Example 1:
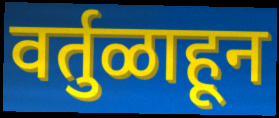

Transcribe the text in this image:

वर्तुळाहून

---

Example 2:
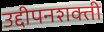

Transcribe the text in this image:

उद्दीपनशक्ती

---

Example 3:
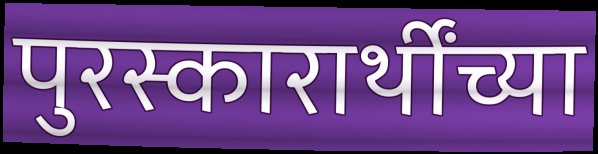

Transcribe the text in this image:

पुरस्कारार्थींच्या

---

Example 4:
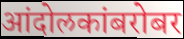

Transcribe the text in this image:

आंदोलकांबरोबर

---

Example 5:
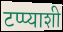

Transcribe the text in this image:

टप्प्याशी